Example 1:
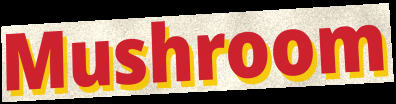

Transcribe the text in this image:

Mushroom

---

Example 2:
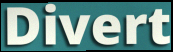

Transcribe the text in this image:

Divert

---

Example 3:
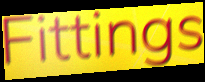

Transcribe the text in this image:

Fittings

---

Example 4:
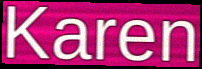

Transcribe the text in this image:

Karen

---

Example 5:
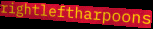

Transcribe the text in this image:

rightleftharpoons